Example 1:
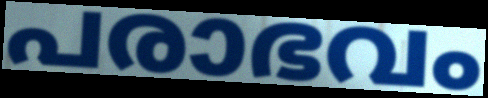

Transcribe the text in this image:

പരാഭവം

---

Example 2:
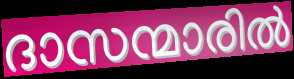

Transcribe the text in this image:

ദാസന്മാരിൽ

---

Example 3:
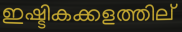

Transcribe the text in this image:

ഇഷ്ടികക്കളത്തില്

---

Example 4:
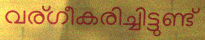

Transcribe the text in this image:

വര്ഗീകരിച്ചിട്ടുണ്ട്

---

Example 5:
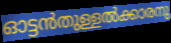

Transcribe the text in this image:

ഓട്ടൻതുള്ളൽക്കാരനു